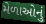
મેળાઓનું